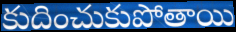
కుదించుకుపోతాయి